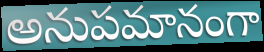
అనుపమానంగా